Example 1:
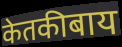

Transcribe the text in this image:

केतकीबाय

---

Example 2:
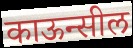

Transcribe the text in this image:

काऊन्सील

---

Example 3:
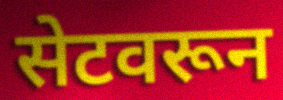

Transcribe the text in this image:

सेटवरून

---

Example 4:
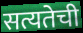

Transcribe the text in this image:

सत्यतेची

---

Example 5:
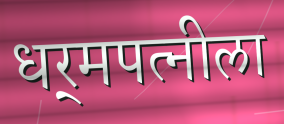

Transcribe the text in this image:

धर्मपत्नीला